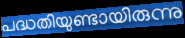
പദ്ധതിയുണ്ടായിരുന്നു